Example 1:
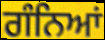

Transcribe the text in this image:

ਗੰਨਿਆਂ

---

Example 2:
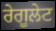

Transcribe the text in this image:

ਰੇਗੂਲੇਟ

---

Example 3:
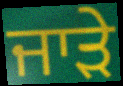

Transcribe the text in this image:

ਜਾੜੇ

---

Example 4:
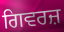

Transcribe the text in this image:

ਗਿਵਰਜ਼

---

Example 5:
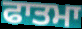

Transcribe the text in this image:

ਫਾਤਮਾ